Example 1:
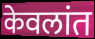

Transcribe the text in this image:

केवलांत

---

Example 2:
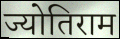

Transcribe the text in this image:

ज्योतिराम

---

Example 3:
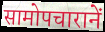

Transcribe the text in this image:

सामोपचारानें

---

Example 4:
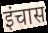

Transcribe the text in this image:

इंचास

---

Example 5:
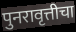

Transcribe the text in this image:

पुनरावृत्तीचा